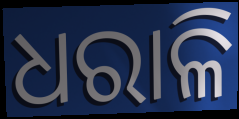
ଧରାଳି